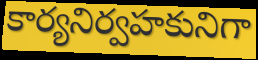
కార్యనిర్వహకునిగా